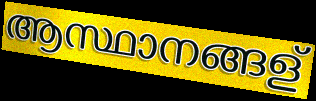
ആസ്ഥാനങ്ങള്